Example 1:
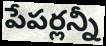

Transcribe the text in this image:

పేపర్లన్నీ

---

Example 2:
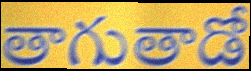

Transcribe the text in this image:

తాగుతాడో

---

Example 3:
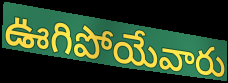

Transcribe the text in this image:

ఊగిపోయేవారు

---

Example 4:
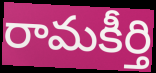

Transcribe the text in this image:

రామకీర్తి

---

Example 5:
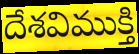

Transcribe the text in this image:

దేశవిముక్తి